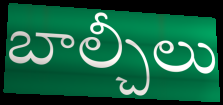
బాల్చీలు